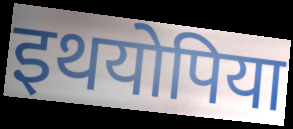
इथयोपिया